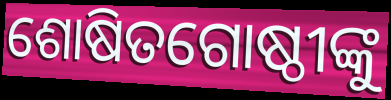
ଶୋଷିତଗୋଷ୍ଠୀଙ୍କୁ